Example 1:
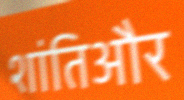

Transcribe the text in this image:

शांतिऔर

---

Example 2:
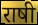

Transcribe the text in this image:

राषी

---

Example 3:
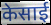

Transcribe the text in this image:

केसाई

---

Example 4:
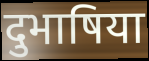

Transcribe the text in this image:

दुभाषिया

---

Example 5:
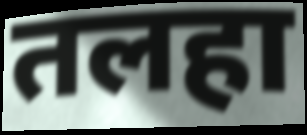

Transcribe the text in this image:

तलहा